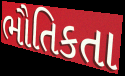
ભૌતિકતા